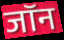
जॉन